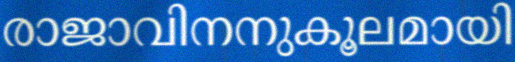
രാജാവിനനുകൂലമായി